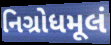
નિગ્રોધમૂલં